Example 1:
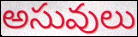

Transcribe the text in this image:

అసువులు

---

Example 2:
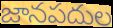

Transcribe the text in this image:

జానపదుల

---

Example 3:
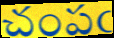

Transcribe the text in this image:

చంపఁ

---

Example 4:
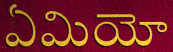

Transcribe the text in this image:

ఏమియో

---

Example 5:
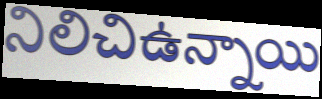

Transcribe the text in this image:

నిలిచిఉన్నాయి